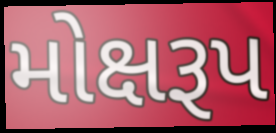
મોક્ષરૂપ